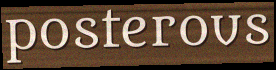
posterous